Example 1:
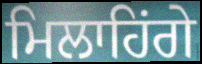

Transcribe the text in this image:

ਮਿਲਾਹਿਂਗੇ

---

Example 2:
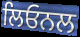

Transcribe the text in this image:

ਲਿਓਨਲ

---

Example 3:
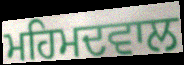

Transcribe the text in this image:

ਮਹਿਮਦਵਾਲ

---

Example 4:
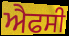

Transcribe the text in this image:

ਐਫਸੀ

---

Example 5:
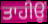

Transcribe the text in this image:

ਤਾਹੀਉਂ